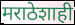
मराठेशाही